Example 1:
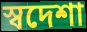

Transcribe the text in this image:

স্বদেশা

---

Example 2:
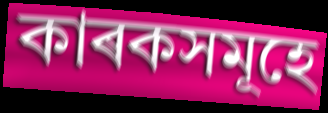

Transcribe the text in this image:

কাৰকসমূহে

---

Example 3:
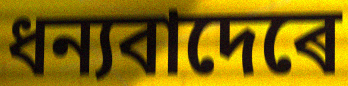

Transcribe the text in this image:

ধন্যবাদেৰে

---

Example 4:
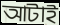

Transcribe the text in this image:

আটাই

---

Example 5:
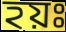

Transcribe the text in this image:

হয়ঃ